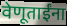
वेणूताईंना